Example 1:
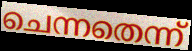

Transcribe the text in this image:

ചെന്നതെന്ന്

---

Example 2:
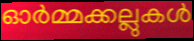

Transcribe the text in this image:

ഓർമ്മക്കല്ലുകൾ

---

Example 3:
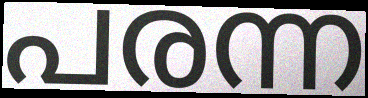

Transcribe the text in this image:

പരന്ന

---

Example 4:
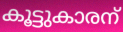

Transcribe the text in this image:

കൂട്ടുകാരന്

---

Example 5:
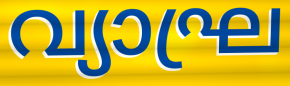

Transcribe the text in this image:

വ്യാഘ്ര